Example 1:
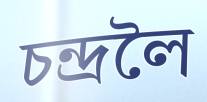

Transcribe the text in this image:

চন্দ্ৰলৈ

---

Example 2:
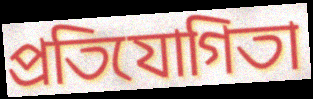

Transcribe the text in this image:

প্ৰতিযোগিতা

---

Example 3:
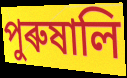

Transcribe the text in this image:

পুৰুষালি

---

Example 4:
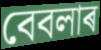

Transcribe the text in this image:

বেবলাৰ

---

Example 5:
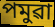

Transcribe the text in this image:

পমুৱা